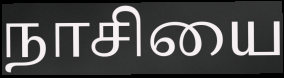
நாசியை